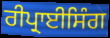
ਰੀਪ੍ਰਾਈਸਿੰਗ